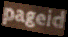
pageid